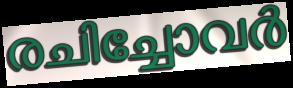
രചിച്ചോവർ